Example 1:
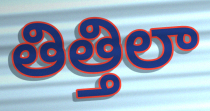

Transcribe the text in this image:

తిత్తిలా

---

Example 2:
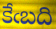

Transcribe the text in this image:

కేఁబది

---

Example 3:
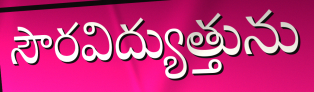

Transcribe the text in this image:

సౌరవిద్యుత్తును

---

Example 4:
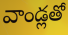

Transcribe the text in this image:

వాండ్లతో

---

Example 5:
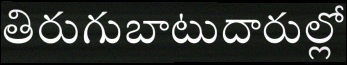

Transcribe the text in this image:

తిరుగుబాటుదారుల్లో